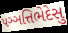
પઞ્ઞત્તિભેદેસુ